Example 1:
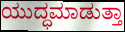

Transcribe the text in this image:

ಯುದ್ಧಮಾಡುತ್ತಾ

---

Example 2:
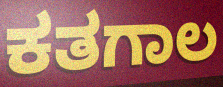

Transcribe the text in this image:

ಕತಗಾಲ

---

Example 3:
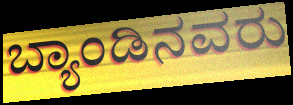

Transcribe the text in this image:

ಬ್ಯಾಂಡಿನವರು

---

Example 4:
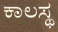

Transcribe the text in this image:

ಕಾಲಸ್ಥ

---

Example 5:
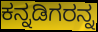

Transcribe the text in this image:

ಕನ್ನಡಿಗರನ್ನ